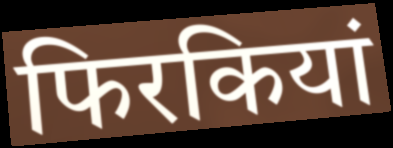
फिरकियां